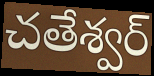
చతేశ్వర్